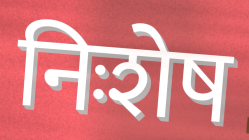
निःशेष